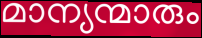
മാന്യന്മാരും